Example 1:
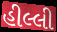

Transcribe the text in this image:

હીલ્લી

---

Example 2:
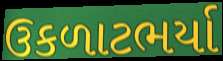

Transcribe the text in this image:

ઉકળાટભર્યા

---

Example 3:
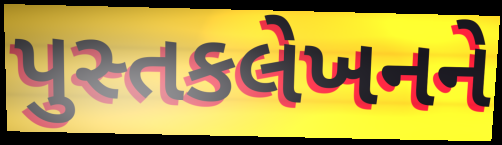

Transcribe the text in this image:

પુસ્તકલેખનને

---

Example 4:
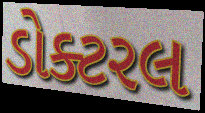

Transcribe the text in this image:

ડોક્ટરલ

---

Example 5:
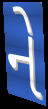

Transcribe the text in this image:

ને